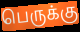
பெருக்கு